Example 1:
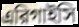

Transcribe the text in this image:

এরিগাইসি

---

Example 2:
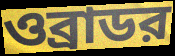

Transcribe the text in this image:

ওব্রাডর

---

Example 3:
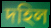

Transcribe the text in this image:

দহিল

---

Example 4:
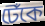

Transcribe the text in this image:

টেঁকে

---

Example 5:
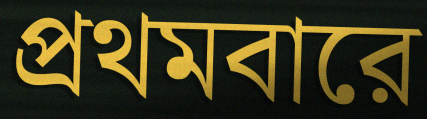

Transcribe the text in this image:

প্রথমবারে